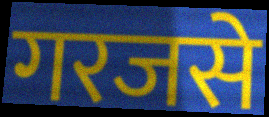
गरजसे